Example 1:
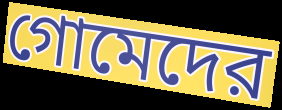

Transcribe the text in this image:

গোমেদের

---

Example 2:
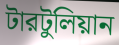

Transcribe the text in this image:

টারটুলিয়ান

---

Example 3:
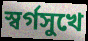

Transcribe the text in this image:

স্বর্গসুখে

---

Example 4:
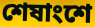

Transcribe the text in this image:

শেষাংশে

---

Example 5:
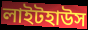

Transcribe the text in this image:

লাইটহাউস